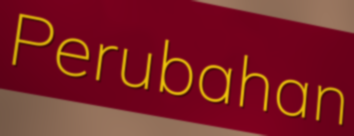
Perubahan